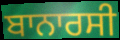
ਬਾਨਾਰਸੀ